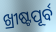
ଖ୍ରୀଷ୍ଟପୂର୍ବ